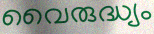
വൈരുദ്ധ്യം